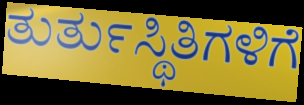
ತುರ್ತುಸ್ಥಿತಿಗಳಿಗೆ